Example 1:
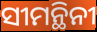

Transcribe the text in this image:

ସୀମନ୍ଥିନୀ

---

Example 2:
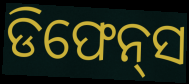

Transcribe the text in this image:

ଡିଫେନ୍‌ସ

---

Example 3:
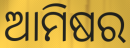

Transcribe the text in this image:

ଆମିଷର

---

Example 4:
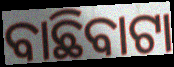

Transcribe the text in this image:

ବାଛିବାଟା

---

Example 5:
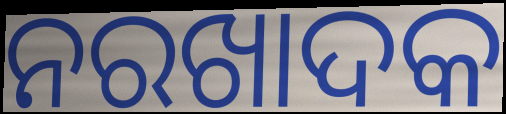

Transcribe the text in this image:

ନରଖାଦକ